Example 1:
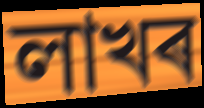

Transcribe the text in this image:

লাখৰ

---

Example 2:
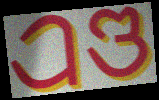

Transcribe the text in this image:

এণ্ড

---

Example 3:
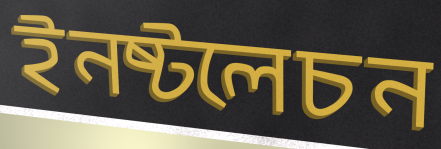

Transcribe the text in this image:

ইনষ্টলেচন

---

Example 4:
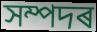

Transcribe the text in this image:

সম্পদৰ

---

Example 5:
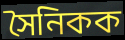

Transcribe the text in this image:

সৈনিকক